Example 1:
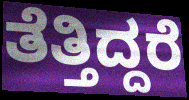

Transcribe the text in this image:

ತೆತ್ತಿದ್ದರೆ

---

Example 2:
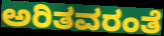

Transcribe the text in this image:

ಅರಿತವರಂತೆ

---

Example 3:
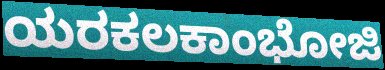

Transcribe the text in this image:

ಯರಕಲಕಾಂಭೋಜಿ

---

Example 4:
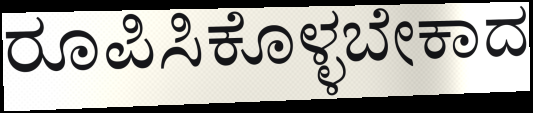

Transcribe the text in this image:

ರೂಪಿಸಿಕೊಳ್ಳಬೇಕಾದ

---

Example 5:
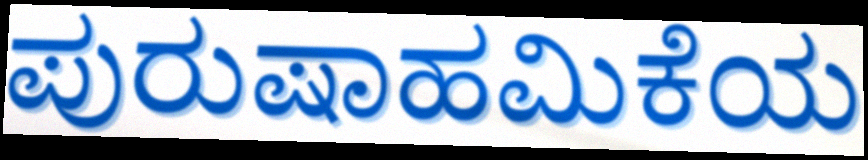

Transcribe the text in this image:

ಪುರುಷಾಹಮಿಕೆಯ